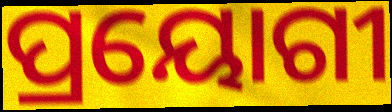
ପ୍ରୟୋଗୀ